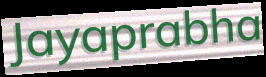
Jayaprabha